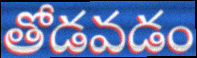
తోడవడం